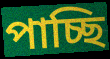
পাচ্ছি